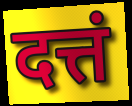
दत्तं